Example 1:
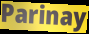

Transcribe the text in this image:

Parinay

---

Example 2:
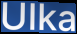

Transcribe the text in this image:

Ulka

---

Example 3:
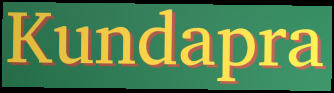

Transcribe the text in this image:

Kundapra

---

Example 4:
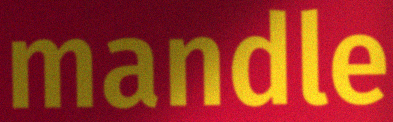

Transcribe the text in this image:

mandle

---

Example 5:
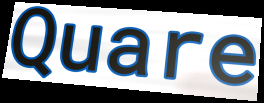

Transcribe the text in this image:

Quare